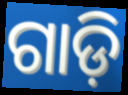
ଗାଡ଼ି